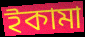
ইকামা